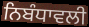
ਨਿਬੰਧਾਵਲੀ